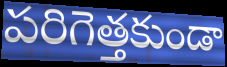
పరిగెత్తకుండా